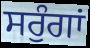
ਸਰੁੰਗਾਂ